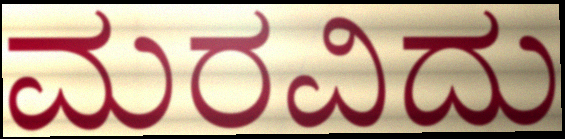
ಮರವಿದು